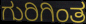
ಗುರಿಗಿಂತ